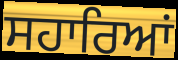
ਸਹਾਰਿਆਂ